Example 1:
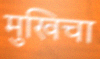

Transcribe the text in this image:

मुखिचा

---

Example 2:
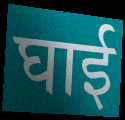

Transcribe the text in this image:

घाई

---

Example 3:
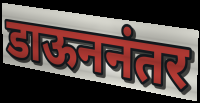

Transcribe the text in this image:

डाऊननंतर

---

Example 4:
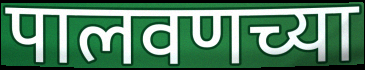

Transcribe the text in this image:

पालवणच्या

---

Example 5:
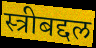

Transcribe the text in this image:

स्त्रीबद्दल